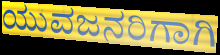
ಯುವಜನರಿಗಾಗಿ